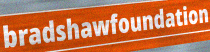
bradshawfoundation